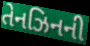
તેનઝિનની